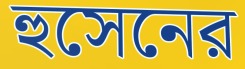
হুসেনের